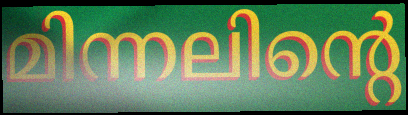
മിന്നലിന്റെ